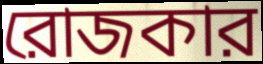
রোজকার